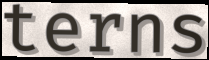
terns